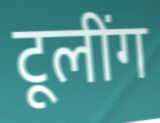
टूलींग